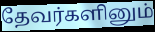
தேவர்களினும்